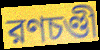
রণচণ্ডী